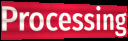
Processing